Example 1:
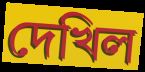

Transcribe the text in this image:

দেখিল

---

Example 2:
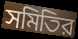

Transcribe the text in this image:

সমিতির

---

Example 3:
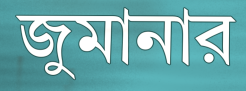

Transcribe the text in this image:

জুমানার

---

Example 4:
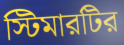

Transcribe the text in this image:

স্টিমারটির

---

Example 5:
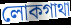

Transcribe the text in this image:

লোকগাথা